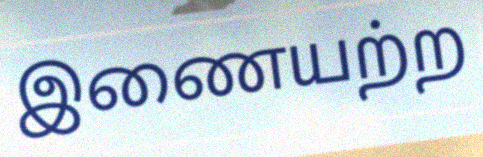
இணையற்ற